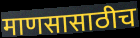
माणसासाठीच